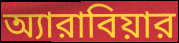
অ্যারাবিয়ার